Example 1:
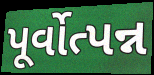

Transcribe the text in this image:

પૂર્વોત્પન્ન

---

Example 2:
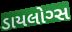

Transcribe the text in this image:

ડાયલોગ્સ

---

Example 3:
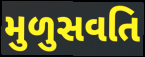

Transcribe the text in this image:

મુળુસવતિ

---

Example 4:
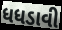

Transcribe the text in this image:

ધધડાવી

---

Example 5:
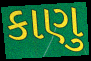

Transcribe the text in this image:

કાણુ